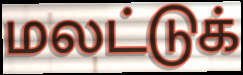
மலட்டுக்